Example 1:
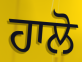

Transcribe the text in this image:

ਹਾਲੋ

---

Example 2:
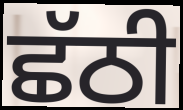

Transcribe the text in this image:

ਛੱਠੀ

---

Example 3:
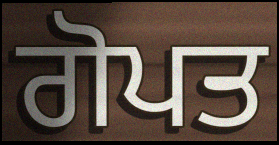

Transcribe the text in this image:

ਗੋਪਤ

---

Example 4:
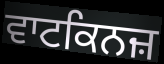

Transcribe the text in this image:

ਵਾਟਕਿਨਜ਼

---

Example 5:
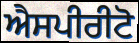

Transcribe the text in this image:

ਐਸਪੀਰੀਟੋ